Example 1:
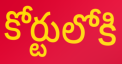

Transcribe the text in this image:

కోర్టులోకి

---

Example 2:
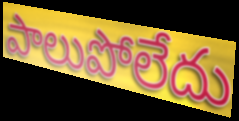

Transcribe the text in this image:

పాలుపోలేదు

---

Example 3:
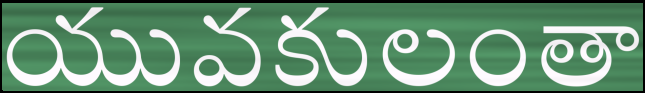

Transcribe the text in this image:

యువకులంతా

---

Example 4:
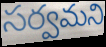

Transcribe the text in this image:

సర్వమని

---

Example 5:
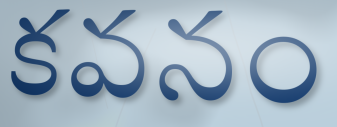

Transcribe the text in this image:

కవనం